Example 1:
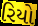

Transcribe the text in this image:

રિયો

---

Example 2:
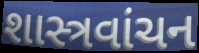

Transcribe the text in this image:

શાસ્ત્રવાંચન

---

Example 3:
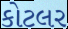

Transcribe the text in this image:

કોટલર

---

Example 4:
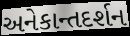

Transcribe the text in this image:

અનેકાન્તદર્શન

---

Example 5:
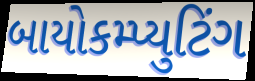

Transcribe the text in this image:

બાયોકમ્પ્યુટિંગ